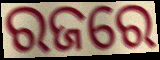
ରଜରେ